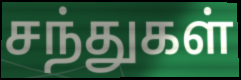
சந்துகள்